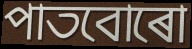
পাতবোৰো